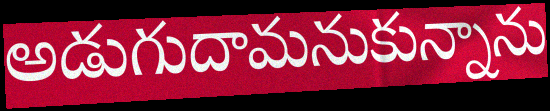
అడుగుదామనుకున్నాను